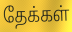
தேக்கள்